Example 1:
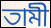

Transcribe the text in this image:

তামী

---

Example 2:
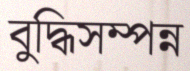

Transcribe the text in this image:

বুদ্ধিসম্পন্ন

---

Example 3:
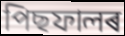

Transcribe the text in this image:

পিছফালৰ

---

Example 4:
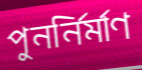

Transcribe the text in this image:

পুনৰ্নিৰ্মাণ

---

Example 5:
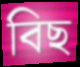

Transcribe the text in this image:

বিছ